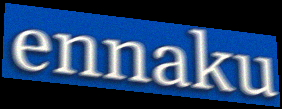
ennaku